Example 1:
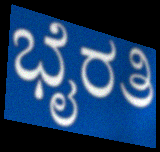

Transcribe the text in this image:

ಭೈರತಿ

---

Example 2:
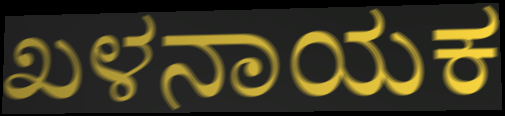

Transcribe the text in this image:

ಖಳನಾಯಕ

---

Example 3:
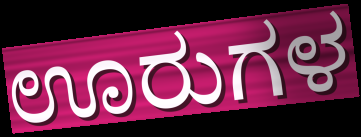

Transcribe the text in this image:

ಊರುಗಳ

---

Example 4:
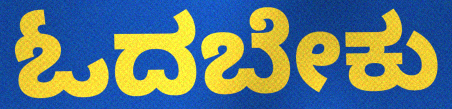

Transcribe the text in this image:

ಓದಬೇಕು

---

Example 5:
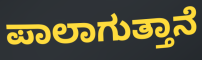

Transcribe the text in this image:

ಪಾಲಾಗುತ್ತಾನೆ